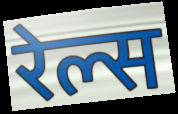
रेल्स